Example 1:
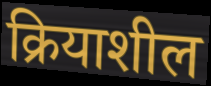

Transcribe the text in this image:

क्रियाशील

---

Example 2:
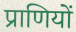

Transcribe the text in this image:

प्राणियों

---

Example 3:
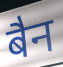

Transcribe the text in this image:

बैन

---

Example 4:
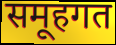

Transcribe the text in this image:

समूहगत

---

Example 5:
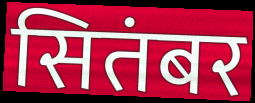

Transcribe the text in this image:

सितंबर